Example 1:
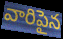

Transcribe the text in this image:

వారిపైన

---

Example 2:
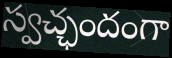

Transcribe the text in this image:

స్వచ్ఛందంగా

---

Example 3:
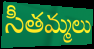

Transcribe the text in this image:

సీతమ్మలు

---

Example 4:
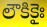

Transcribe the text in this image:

లౌకికైః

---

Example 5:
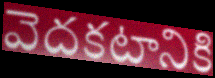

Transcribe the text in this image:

వెదకటానికి